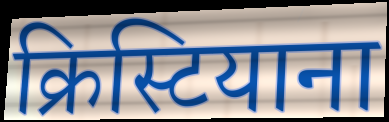
क्रिस्टियाना